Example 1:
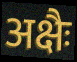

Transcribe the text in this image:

अक्षैः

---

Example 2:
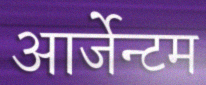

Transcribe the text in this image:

आर्जेन्टम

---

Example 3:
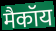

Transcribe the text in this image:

मैकॉय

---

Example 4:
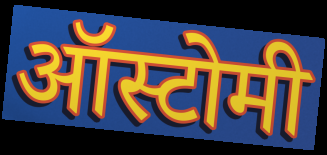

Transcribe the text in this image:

ऑस्टोमी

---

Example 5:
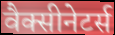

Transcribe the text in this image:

वैक्सीनेटर्स